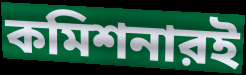
কমিশনারই